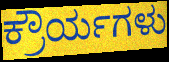
ಕ್ರೌರ್ಯಗಳು